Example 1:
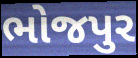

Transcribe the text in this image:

ભોજપુર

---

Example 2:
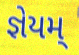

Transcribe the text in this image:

જ્ઞેયમ્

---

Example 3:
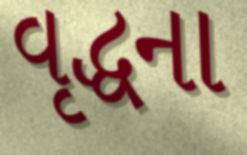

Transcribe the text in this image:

વૃદ્ધના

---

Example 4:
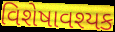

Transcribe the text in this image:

વિશેષાવશ્યક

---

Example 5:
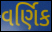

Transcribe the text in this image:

વર્ણિક